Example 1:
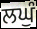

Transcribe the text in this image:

ਲਘੁੰ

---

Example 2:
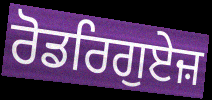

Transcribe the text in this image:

ਰੋਡਰਿਗੁਏਜ਼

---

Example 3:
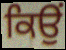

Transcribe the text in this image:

ਕਿਉੰ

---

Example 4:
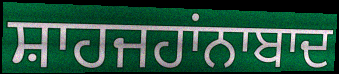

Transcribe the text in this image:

ਸ਼ਾਹਜਹਾਂਨਾਬਾਦ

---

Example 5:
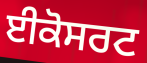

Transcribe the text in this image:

ਈਕੋਸਰਟ